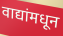
वाद्यांमधून